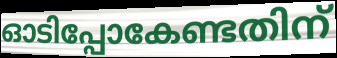
ഓടിപ്പോകേണ്ടതിന്